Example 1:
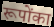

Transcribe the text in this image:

रूपोंका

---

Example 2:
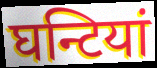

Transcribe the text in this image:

घन्टियां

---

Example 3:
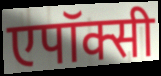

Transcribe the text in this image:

एपॉक्सी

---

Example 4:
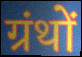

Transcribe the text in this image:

ग्रंथों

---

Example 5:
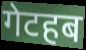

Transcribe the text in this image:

गेटहब